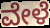
ವೇಳೆ